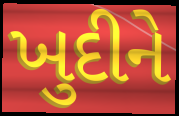
ખુદીને